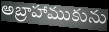
అబ్రాహాముకును